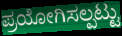
ಪ್ರಯೋಗಿಸಲ್ಪಟ್ಟು